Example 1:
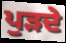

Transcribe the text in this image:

ਪੁੜਦੇ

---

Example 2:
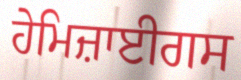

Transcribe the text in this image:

ਹੇਮਿਜ਼ਾਈਗਸ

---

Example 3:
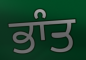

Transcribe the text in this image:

ਭਾੰਤ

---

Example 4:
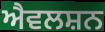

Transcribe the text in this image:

ਐਵਲਸ਼ਨ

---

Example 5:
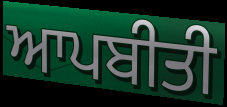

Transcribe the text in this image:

ਆਪਬੀਤੀ